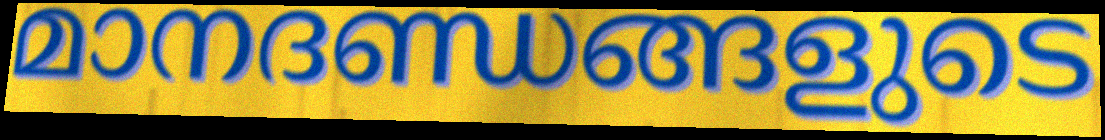
മാനദണ്ഡങ്ങളുടെ